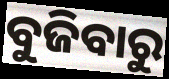
ବୁଜିବାରୁ